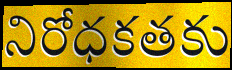
నిరోధకతకు